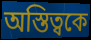
অস্তিত্বকে